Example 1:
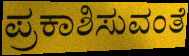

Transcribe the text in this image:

ಪ್ರಕಾಶಿಸುವಂತೆ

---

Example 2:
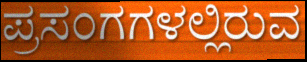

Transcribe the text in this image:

ಪ್ರಸಂಗಗಳಲ್ಲಿರುವ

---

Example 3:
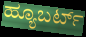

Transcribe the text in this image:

ಹ್ಯೂಬರ್ಟ್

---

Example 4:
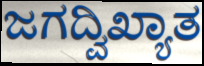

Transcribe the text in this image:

ಜಗದ್ವಿಖ್ಯಾತ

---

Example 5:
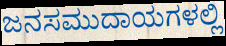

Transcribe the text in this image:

ಜನಸಮುದಾಯಗಳಲ್ಲಿ